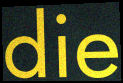
die